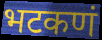
भटकणं